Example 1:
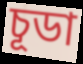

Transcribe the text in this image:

চূডা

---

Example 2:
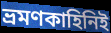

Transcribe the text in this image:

ভ্রমণকাহিনিই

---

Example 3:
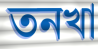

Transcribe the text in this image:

তনখা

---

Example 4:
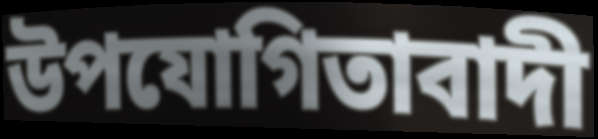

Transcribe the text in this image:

উপযোগিতাবাদী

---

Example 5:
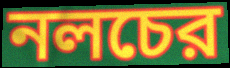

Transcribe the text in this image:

নলচের